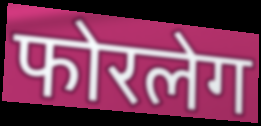
फोरलेग